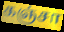
கஞ்சா